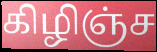
கிழிஞ்ச